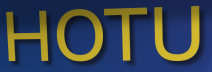
HOTU